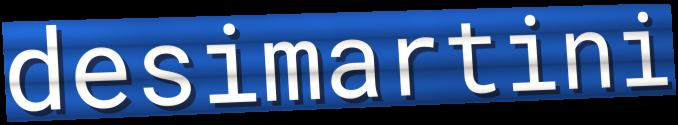
desimartini